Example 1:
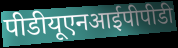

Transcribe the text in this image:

पीडीयूएनआईपीपीडी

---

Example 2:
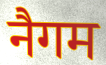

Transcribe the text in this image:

नैगम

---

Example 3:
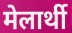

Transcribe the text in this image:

मेलार्थी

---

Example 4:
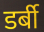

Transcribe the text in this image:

डर्बी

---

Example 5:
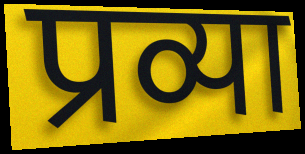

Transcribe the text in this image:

प्रव्या